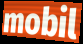
mobil